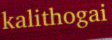
kalithogai